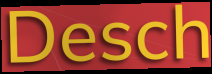
Desch